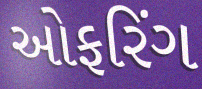
ઓફરિંગ